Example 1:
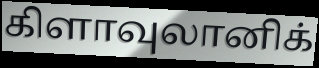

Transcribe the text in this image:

கிளாவுலானிக்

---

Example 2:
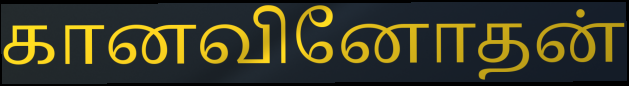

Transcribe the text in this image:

கானவினோதன்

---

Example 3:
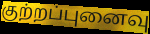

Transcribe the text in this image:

குற்றப்புனைவு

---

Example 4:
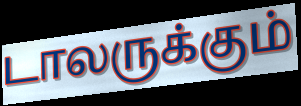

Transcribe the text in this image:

டாலருக்கும்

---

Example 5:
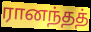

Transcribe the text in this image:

ரானந்தத்